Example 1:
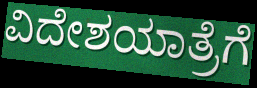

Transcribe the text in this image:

ವಿದೇಶಯಾತ್ರೆಗೆ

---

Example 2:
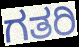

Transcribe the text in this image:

ಗತರಿ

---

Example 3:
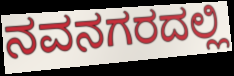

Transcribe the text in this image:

ನವನಗರದಲ್ಲಿ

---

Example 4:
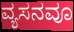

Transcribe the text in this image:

ವ್ಯಸನವೂ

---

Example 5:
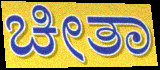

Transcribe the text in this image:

ಚೀತಾ